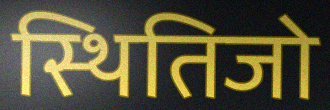
स्थितिजो